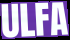
ULFA